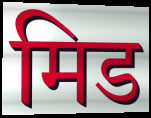
मिड